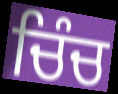
ਚਿੰਚ